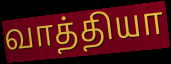
வாத்தியா